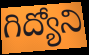
గిద్యోని